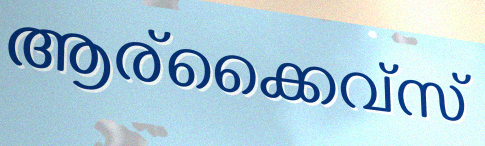
ആര്ക്കൈവ്സ്